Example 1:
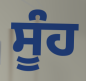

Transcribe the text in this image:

ਸੂੰਹ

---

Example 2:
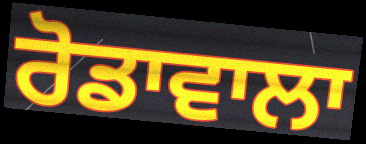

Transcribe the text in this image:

ਰੋਡਾਵਾਲਾ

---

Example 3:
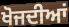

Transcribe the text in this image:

ਖੋਜਦੀਆਂ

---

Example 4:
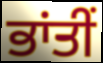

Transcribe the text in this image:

ਭਾਂਤੀਂ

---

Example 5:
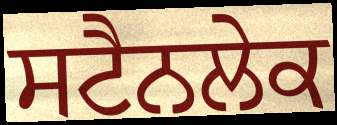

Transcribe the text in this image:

ਸਟੈਨਲੇਕ